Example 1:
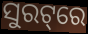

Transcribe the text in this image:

ସୁରଟ୍‌ରେ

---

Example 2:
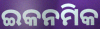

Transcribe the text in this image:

ଇକନମିକ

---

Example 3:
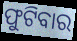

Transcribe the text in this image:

ଫୁଟିବାର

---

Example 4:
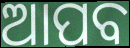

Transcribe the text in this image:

ଆପବ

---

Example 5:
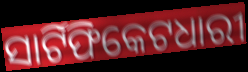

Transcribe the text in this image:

ସାର୍ଟିଫିକେଟଧାରୀ